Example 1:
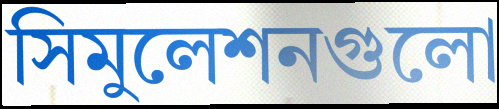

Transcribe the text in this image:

সিমুলেশনগুলো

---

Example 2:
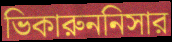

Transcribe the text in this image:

ভিকারুননিসার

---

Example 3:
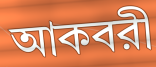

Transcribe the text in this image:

আকবরী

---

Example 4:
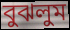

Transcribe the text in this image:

বুঝলুম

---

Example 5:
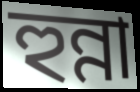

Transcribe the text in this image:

হুন্না